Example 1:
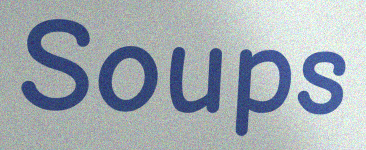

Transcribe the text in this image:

Soups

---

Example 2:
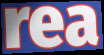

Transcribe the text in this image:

rea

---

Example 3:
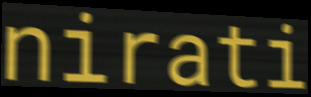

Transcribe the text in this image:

nirati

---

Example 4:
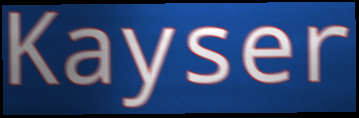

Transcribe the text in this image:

Kayser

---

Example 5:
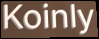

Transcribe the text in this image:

Koinly